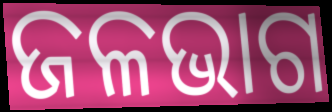
ଜଳଭାଗ